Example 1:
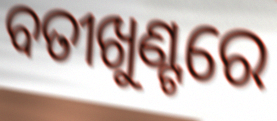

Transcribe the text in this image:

ବତୀଖୁଣ୍ଟରେ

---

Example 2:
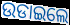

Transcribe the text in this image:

ଉଡାଇଲେ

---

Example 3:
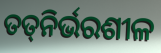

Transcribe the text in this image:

ତତ୍‍ନିର୍ଭରଶୀଳ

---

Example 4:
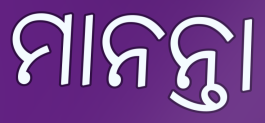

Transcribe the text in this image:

ମାନନ୍ତା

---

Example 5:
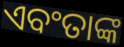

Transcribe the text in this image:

ଏବଂତାଙ୍କ